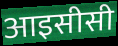
आइसीसी